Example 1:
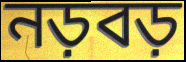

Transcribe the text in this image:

নড়বড়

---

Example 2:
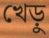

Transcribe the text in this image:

খেড়ু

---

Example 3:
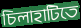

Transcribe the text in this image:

চিলাহাটিতে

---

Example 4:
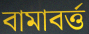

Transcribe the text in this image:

বামাবর্ত্ত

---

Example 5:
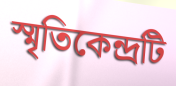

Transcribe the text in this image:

স্মৃতিকেন্দ্রটি